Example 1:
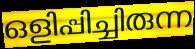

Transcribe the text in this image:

ഒളിപ്പിച്ചിരുന്ന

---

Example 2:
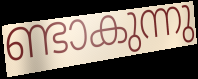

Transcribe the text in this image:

ണ്ടാകുന്നു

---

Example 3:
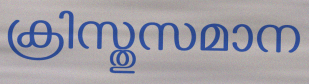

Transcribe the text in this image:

ക്രിസ്തുസമാന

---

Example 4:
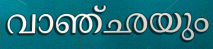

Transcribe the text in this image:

വാഞ്ഛയും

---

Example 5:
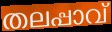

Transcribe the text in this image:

തലപ്പാവ്